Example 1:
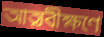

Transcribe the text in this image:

আত্মবীক্ষণে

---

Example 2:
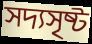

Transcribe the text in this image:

সদ্যসৃষ্ট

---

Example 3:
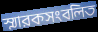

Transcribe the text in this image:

স্মারকসংবলিত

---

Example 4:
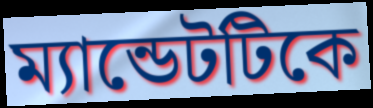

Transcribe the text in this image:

ম্যান্ডেটটিকে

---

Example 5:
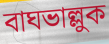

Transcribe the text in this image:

বাঘভাল্লুক